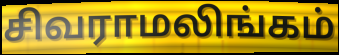
சிவராமலிங்கம்